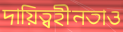
দায়িত্বহীনতাও